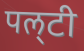
पल्टी